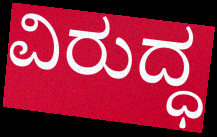
ವಿರುದ್ಧ